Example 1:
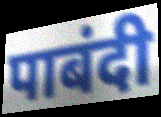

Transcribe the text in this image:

पाबंदी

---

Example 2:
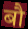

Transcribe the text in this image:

बौ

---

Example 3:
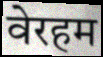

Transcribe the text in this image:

वेरहम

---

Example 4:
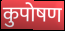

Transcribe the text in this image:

कुपोषण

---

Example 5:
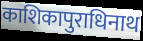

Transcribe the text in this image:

काशिकापुराधिनाथ